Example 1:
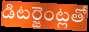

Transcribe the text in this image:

డిటర్జెంట్లతో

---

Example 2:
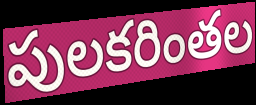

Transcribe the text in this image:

పులకరింతల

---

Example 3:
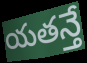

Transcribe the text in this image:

యతన్తే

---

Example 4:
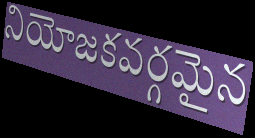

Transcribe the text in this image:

నియోజకవర్గమైన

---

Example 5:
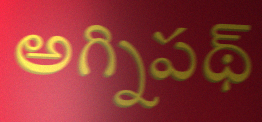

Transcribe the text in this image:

అగ్నిపథ్